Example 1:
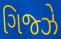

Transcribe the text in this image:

ગિજ્ઝે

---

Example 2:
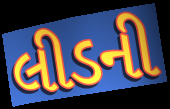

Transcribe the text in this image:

લીડની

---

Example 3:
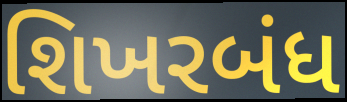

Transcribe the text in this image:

શિખરબંધ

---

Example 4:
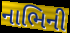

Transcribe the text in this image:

નાભિની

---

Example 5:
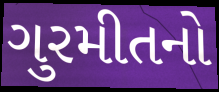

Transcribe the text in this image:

ગુરમીતનો